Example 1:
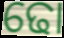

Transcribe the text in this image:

ଢୋ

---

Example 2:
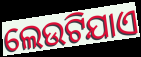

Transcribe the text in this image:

ଲେଉଟିଯାଏ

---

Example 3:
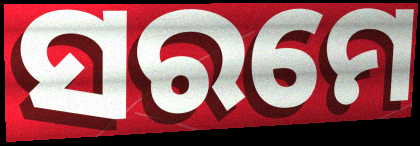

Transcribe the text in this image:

ସରମେ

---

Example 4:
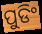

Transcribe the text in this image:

ପୁଡିଂ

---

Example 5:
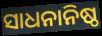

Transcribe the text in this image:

ସାଧନାନିଷ୍ଠ